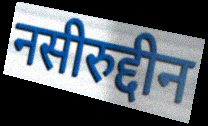
नसीरुद्दीन